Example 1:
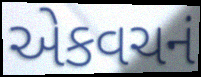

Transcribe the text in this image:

એકવચનં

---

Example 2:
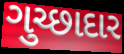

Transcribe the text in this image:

ગુચ્છાદાર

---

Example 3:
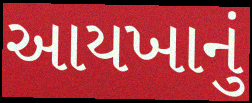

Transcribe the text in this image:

આયખાનું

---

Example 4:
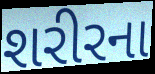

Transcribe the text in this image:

શરીરના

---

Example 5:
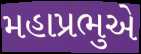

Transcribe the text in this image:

મહાપ્રભુએ